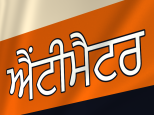
ਐਂਟੀਮੈਟਰ